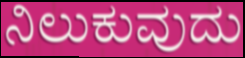
ನಿಲುಕುವುದು